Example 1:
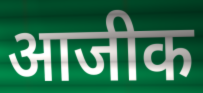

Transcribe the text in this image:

आजीक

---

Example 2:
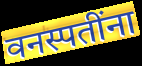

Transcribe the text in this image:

वनस्‍पतींना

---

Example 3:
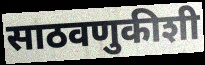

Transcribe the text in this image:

साठवणुकीशी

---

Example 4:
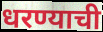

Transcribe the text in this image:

धरण्याची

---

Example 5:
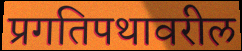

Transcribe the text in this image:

प्रगतिपथावरील